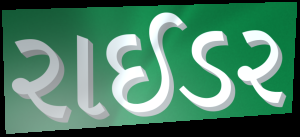
રાઈડર